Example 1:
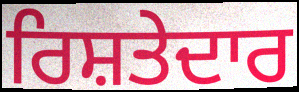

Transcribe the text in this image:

ਰਿਸ਼ਤੇਦਾਰ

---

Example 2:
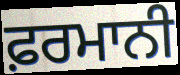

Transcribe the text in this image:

ਫ਼ਰਮਾਨੀ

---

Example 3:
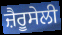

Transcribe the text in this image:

ਜ਼ੈਰੂਸੇਲੀ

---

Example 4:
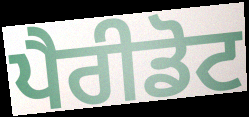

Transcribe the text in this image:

ਪੈਰੀਡੋਟ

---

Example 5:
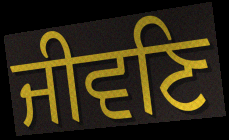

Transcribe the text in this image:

ਜੀਵਣਿ